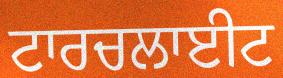
ਟਾਰਚਲਾਈਟ